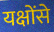
यक्षोंसे